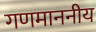
गणमाननीय